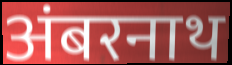
अंबरनाथ